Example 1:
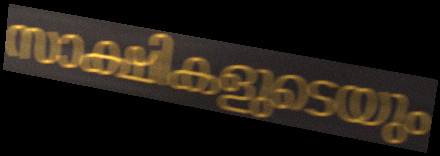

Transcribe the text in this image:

സാക്ഷികളുടെയും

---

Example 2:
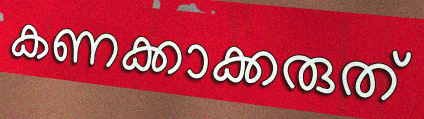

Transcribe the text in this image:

കണക്കാക്കരുത്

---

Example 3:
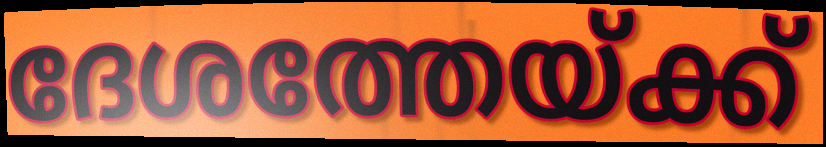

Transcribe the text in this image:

ദേശത്തേയ്ക്ക്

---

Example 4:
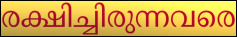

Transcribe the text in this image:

രക്ഷിച്ചിരുന്നവരെ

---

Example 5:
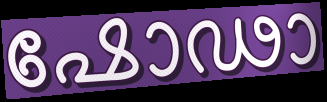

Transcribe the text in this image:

ഷോഢാ